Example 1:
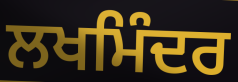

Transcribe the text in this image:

ਲਖਮਿੰਦਰ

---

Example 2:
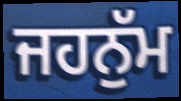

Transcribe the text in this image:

ਜਹਨੁੱਮ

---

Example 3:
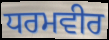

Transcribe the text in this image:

ਧਰਮਵੀਰ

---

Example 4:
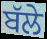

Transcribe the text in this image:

ਬੱਲੇ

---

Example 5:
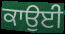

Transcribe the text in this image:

ਕਾਉਈ